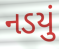
નડયું